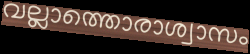
വല്ലാത്തൊരാശ്വാസം